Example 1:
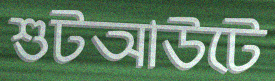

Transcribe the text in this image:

শুটআউটে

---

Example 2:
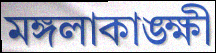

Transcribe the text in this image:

মঙ্গলাকাঙ্ক্ষী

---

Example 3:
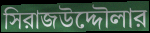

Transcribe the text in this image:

সিরাজউদ্দৌলার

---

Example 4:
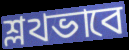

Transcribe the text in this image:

শ্লথভাবে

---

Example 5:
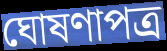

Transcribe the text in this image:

ঘোষণাপত্র